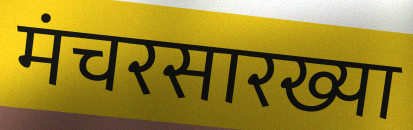
मंचरसारख्या